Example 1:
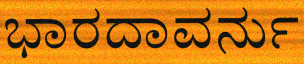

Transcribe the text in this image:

ಭಾರದಾವರ್ನು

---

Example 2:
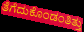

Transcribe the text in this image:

ತೆಗೆದುಕೊಂಡಂತಿತ್ತು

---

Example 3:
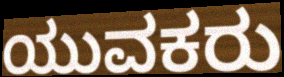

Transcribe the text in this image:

ಯುವಕರು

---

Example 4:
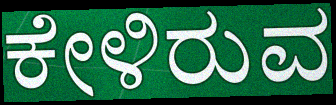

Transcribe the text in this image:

ಕೇಳಿರುವ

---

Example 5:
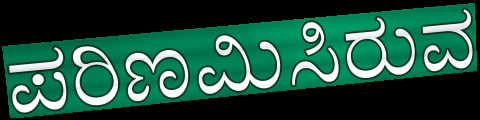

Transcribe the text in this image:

ಪರಿಣಮಿಸಿರುವ